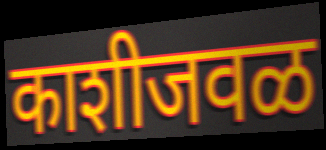
काशीजवळ